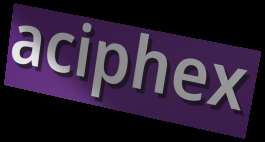
aciphex